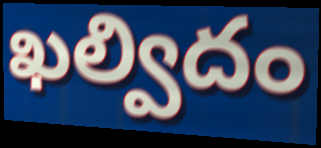
ఖల్విదం